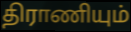
திராணியும்